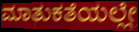
ಮಾತುಕತೆಯಲ್ಲೇ